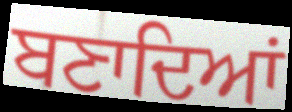
ਬਣਾਦਿਆਂ